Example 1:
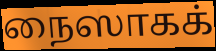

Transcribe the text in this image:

நைஸாகக்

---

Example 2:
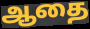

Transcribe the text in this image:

ஆதை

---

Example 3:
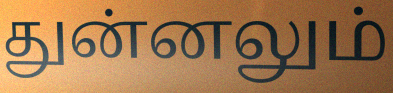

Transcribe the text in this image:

துன்னலும்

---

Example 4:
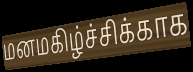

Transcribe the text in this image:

மனமகிழ்ச்சிக்காக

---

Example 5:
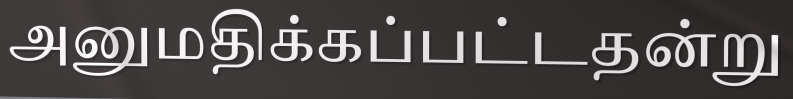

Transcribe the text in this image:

அனுமதிக்கப்பட்டதன்று